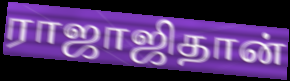
ராஜாஜிதான்